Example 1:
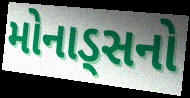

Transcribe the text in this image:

મોનાડ્સનો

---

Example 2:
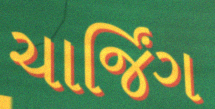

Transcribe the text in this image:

ચાર્જિંગ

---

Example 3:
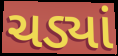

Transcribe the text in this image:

ચડ્યાં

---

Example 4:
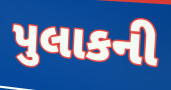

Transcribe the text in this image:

પુલાકની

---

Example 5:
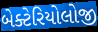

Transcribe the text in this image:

બેક્ટેરિયોલોજી